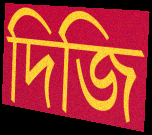
দিজি